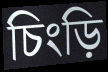
চিংড়ি